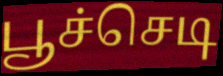
பூச்செடி